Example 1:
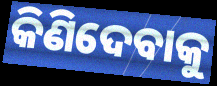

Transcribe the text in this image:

କିଣିଦେବାକୁ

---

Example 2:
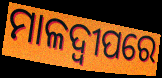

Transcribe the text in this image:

ମାଳଦ୍ବୀପରେ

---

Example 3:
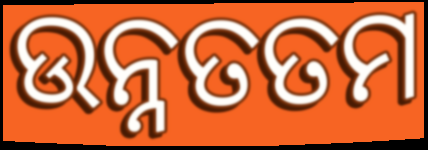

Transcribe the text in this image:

ଉନ୍ନତତମ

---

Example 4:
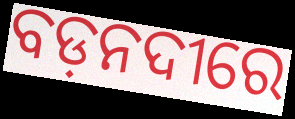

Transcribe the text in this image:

ବଡ଼ନଦୀରେ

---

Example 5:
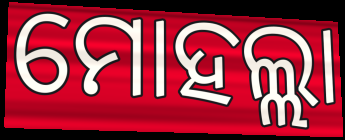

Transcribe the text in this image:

ମୋହଲ୍ଲା